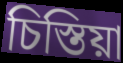
চিস্তিয়া